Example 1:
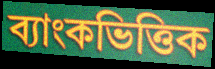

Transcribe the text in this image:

ব্যাংকভিত্তিক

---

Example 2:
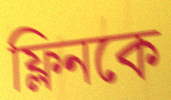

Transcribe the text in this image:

ফ্লিনকে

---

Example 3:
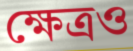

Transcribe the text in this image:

ক্ষেত্রও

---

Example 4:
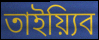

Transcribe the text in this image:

তাইয়্যিব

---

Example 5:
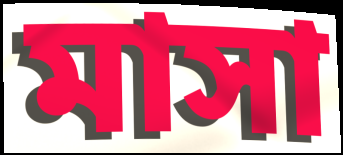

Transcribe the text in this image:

মাসা